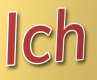
Ich